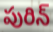
పురిన్